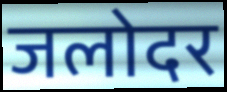
जलोदर